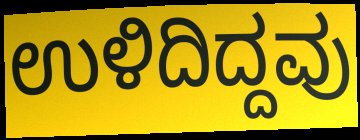
ಉಳಿದಿದ್ದವು